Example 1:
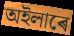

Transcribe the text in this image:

অইলাৰে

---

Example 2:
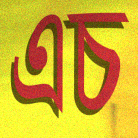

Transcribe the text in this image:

এচ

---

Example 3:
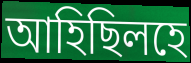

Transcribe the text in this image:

আহিছিলহে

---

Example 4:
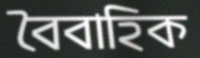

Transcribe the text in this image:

বৈবাহিক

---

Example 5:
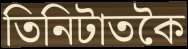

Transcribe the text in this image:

তিনিটাতকৈ